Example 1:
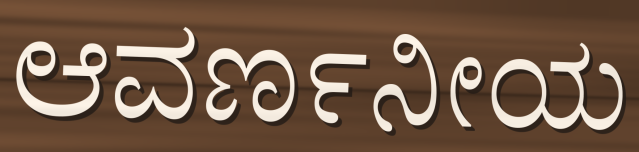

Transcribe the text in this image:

ಆವರ್ಣನೀಯ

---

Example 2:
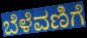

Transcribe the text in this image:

ಬೆಳೆವಣಿಗೆ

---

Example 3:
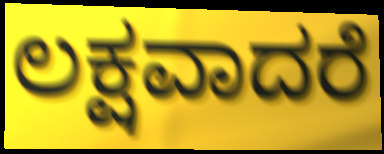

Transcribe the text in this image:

ಲಕ್ಷವಾದರೆ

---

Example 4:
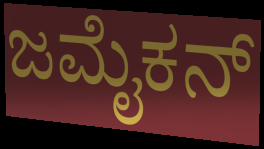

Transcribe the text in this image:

ಜಮೈಕನ್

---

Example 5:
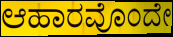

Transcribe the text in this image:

ಆಹಾರವೊಂದೇ